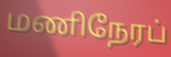
மணிநேரப்